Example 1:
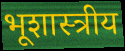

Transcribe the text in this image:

भूशास्त्रीय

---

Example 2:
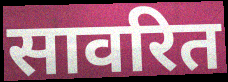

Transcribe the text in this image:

सावरित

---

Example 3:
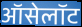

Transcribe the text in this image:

ऑसेलॉट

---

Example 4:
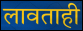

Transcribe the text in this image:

लावताही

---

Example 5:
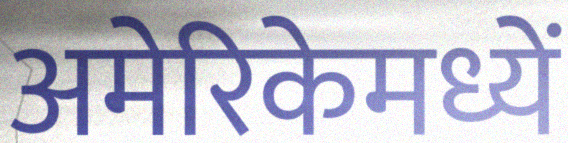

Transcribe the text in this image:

अमेरिकेमध्यें